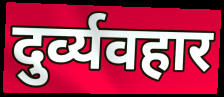
दुर्व्यवहार